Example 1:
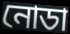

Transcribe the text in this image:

নোডা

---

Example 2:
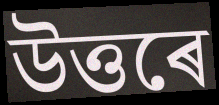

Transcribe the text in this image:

উত্তৰে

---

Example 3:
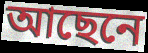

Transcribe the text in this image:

আছেনে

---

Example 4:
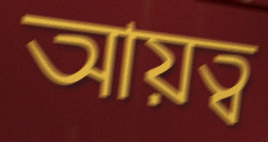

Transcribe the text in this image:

আয়ত্ব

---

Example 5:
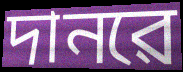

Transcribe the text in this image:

দানৱে